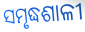
ସମୃଦ୍ଧଶାଳୀ